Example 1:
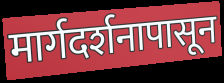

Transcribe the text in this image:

मार्गदर्शनापासून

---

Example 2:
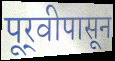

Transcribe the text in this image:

पूर्वीपासून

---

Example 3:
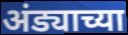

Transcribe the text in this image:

अंड्याच्या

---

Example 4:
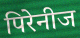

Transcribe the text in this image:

पिरेनीज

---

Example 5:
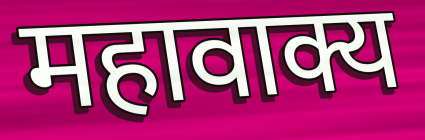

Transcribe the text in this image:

महावाक्य